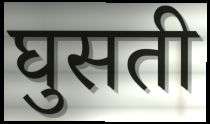
घुसती